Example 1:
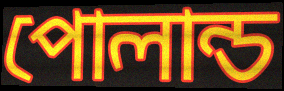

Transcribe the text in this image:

পোলান্ড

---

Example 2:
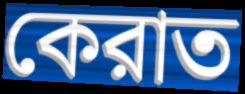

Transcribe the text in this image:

কেরাত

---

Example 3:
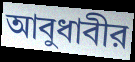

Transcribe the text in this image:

আবুধাবীর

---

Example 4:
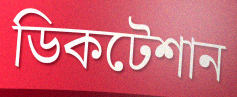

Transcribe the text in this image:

ডিকটেশান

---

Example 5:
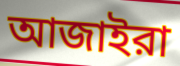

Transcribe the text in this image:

আজাইরা